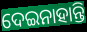
ଦେଇନାହାନ୍ତି